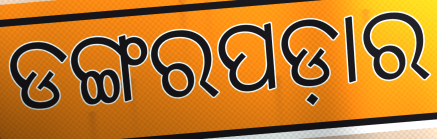
ଡଙ୍ଗରପଡ଼ାର